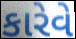
કારેવે